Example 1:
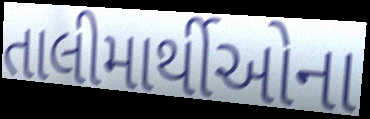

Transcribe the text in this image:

તાલીમાર્થીઓના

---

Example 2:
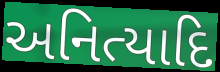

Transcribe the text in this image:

અનિત્યાદિ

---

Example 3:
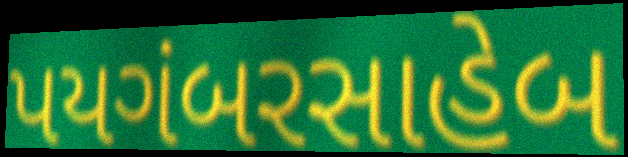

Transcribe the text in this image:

પયગંબરસાહેબ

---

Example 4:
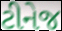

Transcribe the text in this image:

ટીનેજ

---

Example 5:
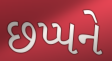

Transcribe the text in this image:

છપ્પને